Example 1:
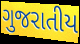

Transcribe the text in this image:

ગુજરાતીય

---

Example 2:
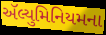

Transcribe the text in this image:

ઍલ્યુમિનિયમના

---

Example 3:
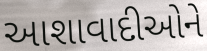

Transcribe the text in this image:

આશાવાદીઓને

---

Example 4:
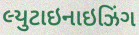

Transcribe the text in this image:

લ્યુટાઇનાઇઝિંગ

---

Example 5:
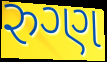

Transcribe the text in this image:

રુગ્ણ